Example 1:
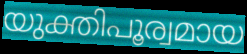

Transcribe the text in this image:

യുക്തിപൂര്വമായ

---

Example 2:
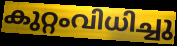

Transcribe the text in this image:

കുറ്റംവിധിച്ചു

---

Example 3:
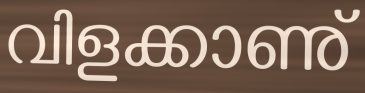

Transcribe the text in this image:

വിളക്കാണു്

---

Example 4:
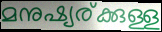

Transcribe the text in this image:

മനുഷ്യര്ക്കുള്ള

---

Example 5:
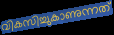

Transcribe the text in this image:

വികസിച്ചുകാണുന്നത്